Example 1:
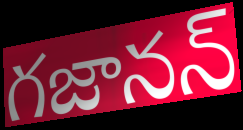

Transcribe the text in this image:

గజానన్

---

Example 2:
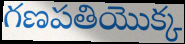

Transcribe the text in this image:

గణపతియొక్క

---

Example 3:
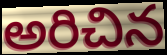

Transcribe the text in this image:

అరిచిన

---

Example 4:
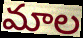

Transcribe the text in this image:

మాల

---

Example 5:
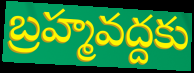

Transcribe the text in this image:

బ్రహ్మవద్దకు